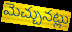
మెచ్చునట్లు